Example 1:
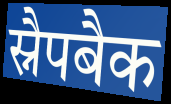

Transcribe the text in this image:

स्नैपबैक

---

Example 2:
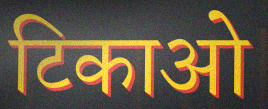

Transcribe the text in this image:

टिकाओ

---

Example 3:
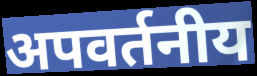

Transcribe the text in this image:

अपवर्तनीय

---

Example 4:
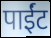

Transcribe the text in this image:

पाईंट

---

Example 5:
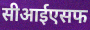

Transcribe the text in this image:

सीआईएसफ